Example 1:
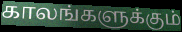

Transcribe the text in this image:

காலங்களுக்கும்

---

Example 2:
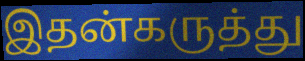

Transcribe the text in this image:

இதன்கருத்து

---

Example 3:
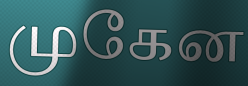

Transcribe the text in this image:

முகேன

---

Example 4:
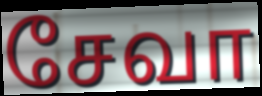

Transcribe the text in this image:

சேவா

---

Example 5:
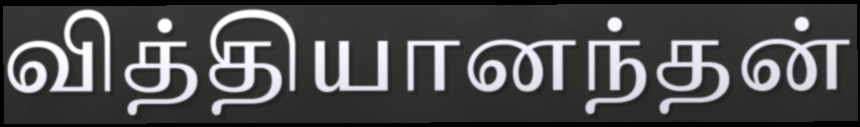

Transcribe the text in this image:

வித்தியானந்தன்